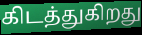
கிடத்துகிறது